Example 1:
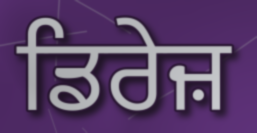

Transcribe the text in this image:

ਡਿਰੇਜ਼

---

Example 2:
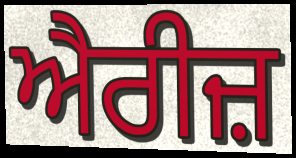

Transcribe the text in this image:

ਐਰੀਜ਼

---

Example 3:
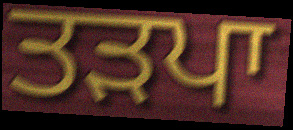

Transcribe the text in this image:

ਤੜਪਾ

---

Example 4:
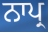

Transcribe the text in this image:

ਨਾਪ੍ਰ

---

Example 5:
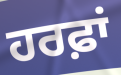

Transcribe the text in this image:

ਹਰਫ਼ਾਂ